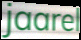
jaarel